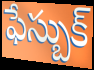
ఫేస్బుక్